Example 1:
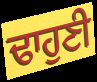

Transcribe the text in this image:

ਢਾਹੁਣੀ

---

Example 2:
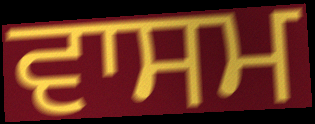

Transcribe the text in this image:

ਵਾਸਮ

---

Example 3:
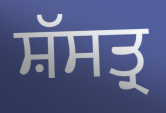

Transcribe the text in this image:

ਸ਼ੱਸਤ੍ਰ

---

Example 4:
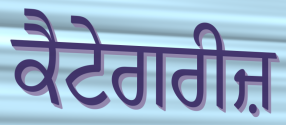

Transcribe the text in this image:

ਕੈਟੇਗਰੀਜ਼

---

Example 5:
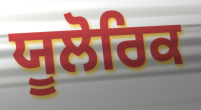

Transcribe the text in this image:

ਯੂਲੋਰਿਕ